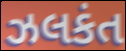
ઝલકંત